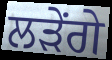
ਲੜੇਂਗੇ